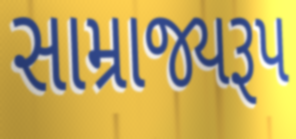
સામ્રાજ્યરૂપ